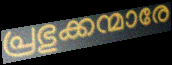
പ്രഭുക്കന്മാരേ